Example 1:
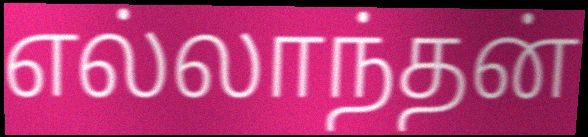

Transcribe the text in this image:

எல்லாந்தன்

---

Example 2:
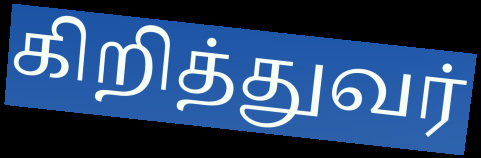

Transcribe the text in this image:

கிறித்துவர்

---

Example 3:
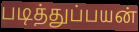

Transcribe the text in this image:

படித்துப்பயன்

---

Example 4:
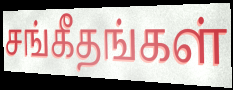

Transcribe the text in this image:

சங்கீதங்கள்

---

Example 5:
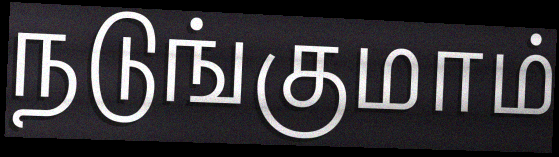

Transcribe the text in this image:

நடுங்குமாம்